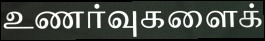
உணர்வுகளைக்